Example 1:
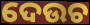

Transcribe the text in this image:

ଦେଉଚ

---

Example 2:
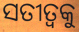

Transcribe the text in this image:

ସତୀତ୍ୱକୁ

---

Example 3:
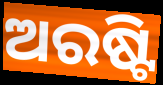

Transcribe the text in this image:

ଅରଷ୍ଟି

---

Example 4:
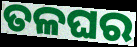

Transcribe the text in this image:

ତଳଘର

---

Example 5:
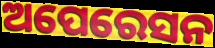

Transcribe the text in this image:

ଅପେରେସନ